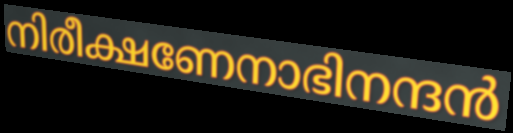
നിരീക്ഷണേനാഭിനന്ദൻ